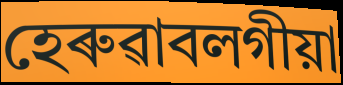
হেৰুৱাবলগীয়া